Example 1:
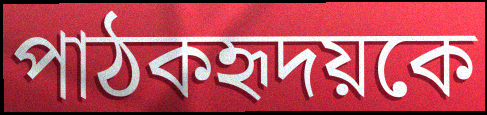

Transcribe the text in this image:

পাঠকহৃদয়কে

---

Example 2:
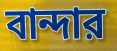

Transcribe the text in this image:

বান্দার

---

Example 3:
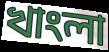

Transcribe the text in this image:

খাংলা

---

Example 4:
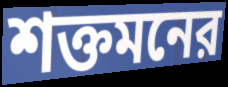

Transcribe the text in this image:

শক্তমনের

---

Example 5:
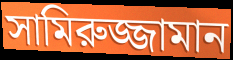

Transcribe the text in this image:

সামিরুজ্জামান